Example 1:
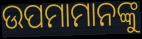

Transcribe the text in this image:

ଉପମାମାନଙ୍କୁ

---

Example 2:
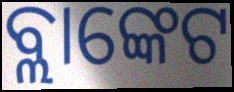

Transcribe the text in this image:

ବ୍ଲାଙ୍କେଟ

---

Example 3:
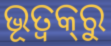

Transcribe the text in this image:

ଭୂତ୍ଵକ୍‌ରୁ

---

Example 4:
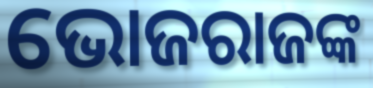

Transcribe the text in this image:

ଭୋଜରାଜଙ୍କ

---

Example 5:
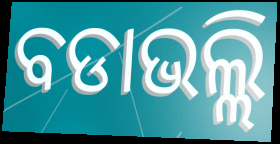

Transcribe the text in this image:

ବଡାଭଲ୍ଲି